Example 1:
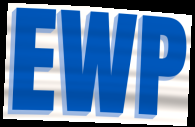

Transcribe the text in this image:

EWP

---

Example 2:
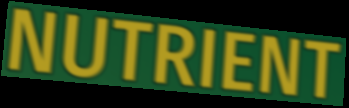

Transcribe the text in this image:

NUTRIENT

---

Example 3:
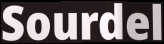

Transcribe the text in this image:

Sourdel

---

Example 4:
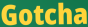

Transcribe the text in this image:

Gotcha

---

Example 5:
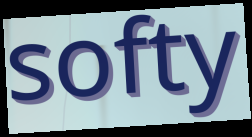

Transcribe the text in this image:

softy